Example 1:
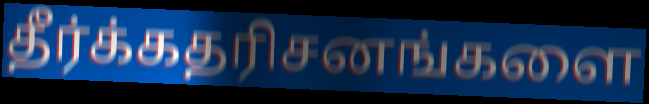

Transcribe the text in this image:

தீர்க்கதரிசனங்களை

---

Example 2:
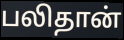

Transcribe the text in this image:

பலிதான்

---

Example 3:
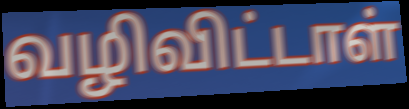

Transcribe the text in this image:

வழிவிட்டாள்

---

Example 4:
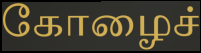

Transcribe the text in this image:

கோழைச்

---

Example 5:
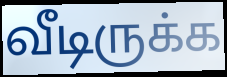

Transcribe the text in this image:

வீடிருக்க